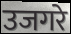
उजगरे